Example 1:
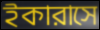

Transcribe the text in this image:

ইকারাসে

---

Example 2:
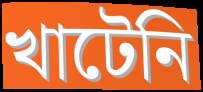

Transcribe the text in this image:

খাটেনি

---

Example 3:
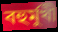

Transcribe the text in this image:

বহুর্মুখী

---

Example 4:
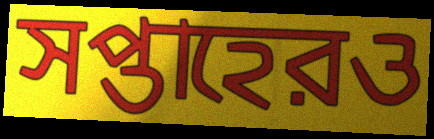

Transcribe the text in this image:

সপ্তাহেরও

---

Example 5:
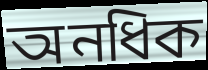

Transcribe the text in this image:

অনধিক